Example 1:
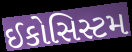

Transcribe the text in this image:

ઈકોસિસ્ટમ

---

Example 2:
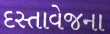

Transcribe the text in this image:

દસ્તાવેજના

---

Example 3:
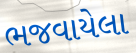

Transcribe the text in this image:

ભજવાયેલા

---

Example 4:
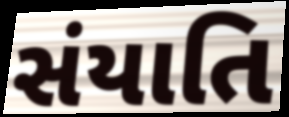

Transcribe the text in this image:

સંયાતિ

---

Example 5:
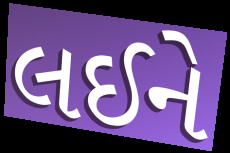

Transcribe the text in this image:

લઈને